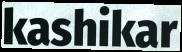
kashikar